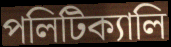
পলিটিক্যালি